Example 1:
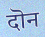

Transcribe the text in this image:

दॊन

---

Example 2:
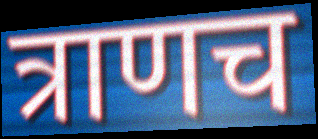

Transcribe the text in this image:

त्राणच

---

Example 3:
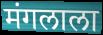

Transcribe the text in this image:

मंगलाला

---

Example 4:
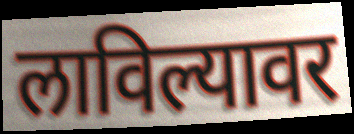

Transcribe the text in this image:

लाविल्यावर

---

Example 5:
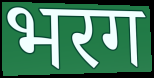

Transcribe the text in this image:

भरग